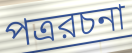
পত্ররচনা